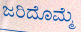
ಜರಿದೊಮ್ಮೆ